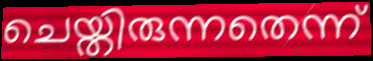
ചെയ്തിരുന്നതെന്ന്